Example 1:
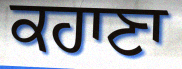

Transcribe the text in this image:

ਕਹਾਣਾ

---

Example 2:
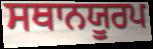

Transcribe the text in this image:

ਸਥਾਨਯੂਰਪ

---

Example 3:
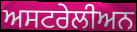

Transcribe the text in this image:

ਅਸਟਰੇਲੀਅਨ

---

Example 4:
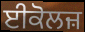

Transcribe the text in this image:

ਈਕੋਲਜ਼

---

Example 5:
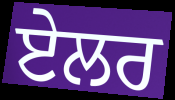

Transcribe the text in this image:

ਏਲਰ